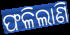
ଫଳିଲାଣି